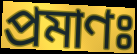
প্রমাণঃ